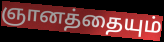
ஞானத்தையும்